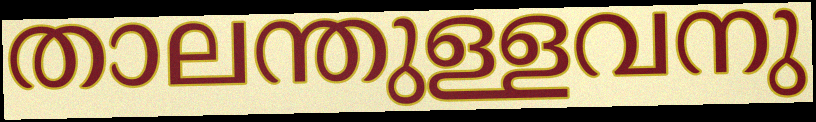
താലന്തുള്ളവനു